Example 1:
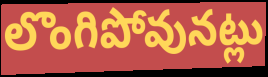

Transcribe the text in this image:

లొంగిపోవునట్లు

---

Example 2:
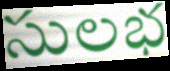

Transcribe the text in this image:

సులభ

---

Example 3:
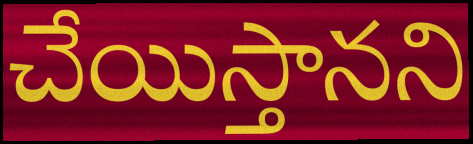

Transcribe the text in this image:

చేయిస్తానని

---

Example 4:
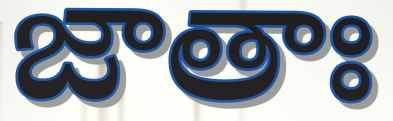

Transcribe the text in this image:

జాతాః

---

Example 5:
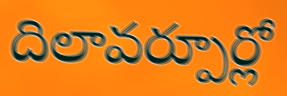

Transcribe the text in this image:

దిలావర్పూర్లో